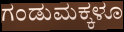
ಗಂಡುಮಕ್ಕಳೂ